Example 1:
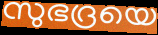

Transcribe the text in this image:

സുഭദ്രയെ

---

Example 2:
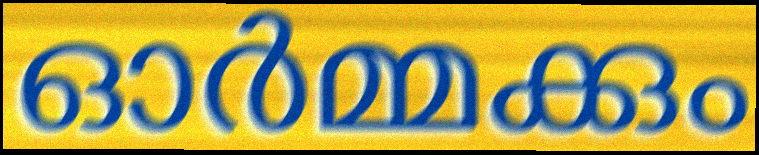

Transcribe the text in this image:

ഓർമ്മക്കും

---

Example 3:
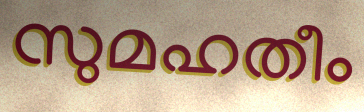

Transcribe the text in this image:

സുമഹതീം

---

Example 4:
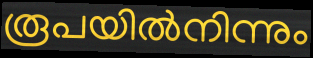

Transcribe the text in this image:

രൂപയിൽനിന്നും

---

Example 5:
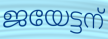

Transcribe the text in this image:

ജയേട്ടന്